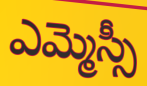
ఎమ్మెస్సీ